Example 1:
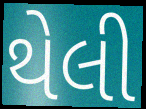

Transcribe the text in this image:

થેલી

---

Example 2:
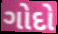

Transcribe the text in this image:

ગોદો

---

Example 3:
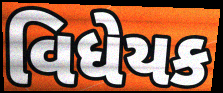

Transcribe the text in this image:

વિધેયક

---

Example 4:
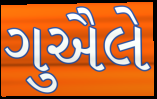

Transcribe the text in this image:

ગુઐલે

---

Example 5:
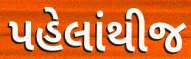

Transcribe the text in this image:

પહેલાંથીજ